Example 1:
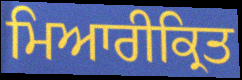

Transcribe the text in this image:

ਮਿਆਰੀਕ੍ਰਿਤ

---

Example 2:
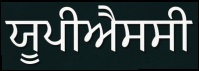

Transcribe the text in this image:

ਯੂਪੀਐਸਸੀ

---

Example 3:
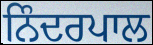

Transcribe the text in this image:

ਨਿੰਦਰਪਾਲ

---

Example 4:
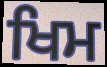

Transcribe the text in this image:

ਖਿਮ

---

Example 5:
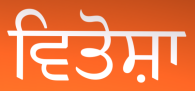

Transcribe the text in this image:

ਵਿਤੋਸ਼ਾ